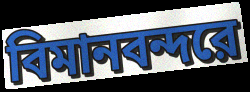
বিমানবন্দরে